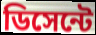
ডিসেন্টে